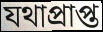
যথাপ্রাপ্ত